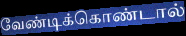
வேண்டிக்கொண்டால்